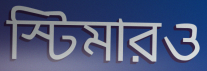
স্টিমারও